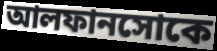
আলফানসোকে